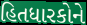
હિતધારકોને